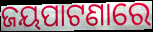
ଜୟପାଟଣାରେ